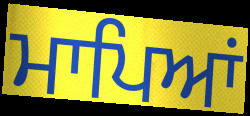
ਮਾਪਿਆਂ